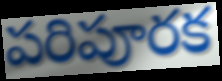
పరిపూరక